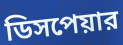
ডিসপেয়ার